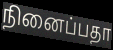
நினைப்பதா